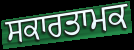
ਸਕਾਰਤਾਮਕ